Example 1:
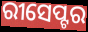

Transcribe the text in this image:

ରୀସେପ୍ଟର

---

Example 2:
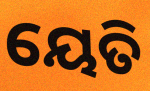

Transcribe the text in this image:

ୟେତି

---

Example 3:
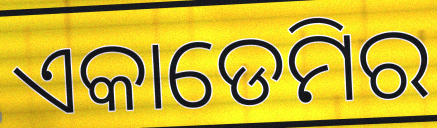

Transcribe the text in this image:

ଏକାଡେମିର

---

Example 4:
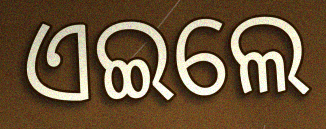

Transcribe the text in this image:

ଏଇଲେ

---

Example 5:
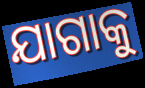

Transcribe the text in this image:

ଯାଗାକୁ